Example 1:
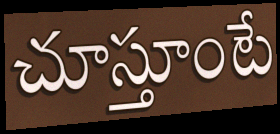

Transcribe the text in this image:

చూస్తూంటే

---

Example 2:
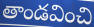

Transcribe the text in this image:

తాండవించి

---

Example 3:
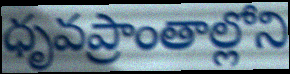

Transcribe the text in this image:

ధృవప్రాంతాల్లోని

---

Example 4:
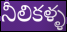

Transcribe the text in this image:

నీలికళ్ళ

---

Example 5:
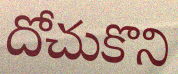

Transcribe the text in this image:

దోచుకొని